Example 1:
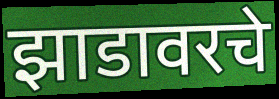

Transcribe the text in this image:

झाडावरचे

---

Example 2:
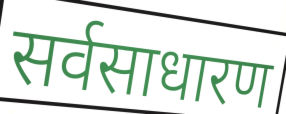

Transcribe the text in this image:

सर्वसाधारण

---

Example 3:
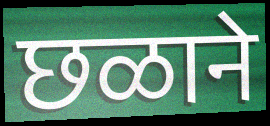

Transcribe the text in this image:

छळाने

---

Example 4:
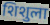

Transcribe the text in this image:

शिशुला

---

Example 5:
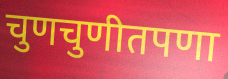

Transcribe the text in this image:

चुणचुणीतपणा